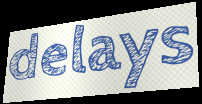
delays